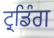
ਟ੍ਰਡਿੰਗ